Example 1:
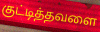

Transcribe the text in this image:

குட்டித்தவளை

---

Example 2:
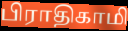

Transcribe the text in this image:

பிராதிகாமி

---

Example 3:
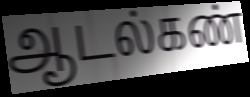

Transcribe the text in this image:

ஆடல்கண்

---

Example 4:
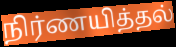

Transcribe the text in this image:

நிர்ணயித்தல்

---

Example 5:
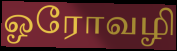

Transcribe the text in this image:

ஓரோவழி